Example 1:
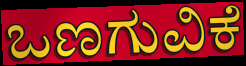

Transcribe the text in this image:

ಒಣಗುವಿಕೆ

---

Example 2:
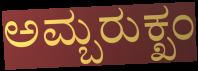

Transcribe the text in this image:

ಅಮ್ಬರುಕ್ಖಂ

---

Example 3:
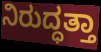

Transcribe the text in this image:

ನಿರುದ್ಧತ್ತಾ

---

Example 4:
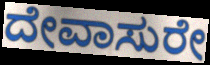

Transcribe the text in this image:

ದೇವಾಸುರೇ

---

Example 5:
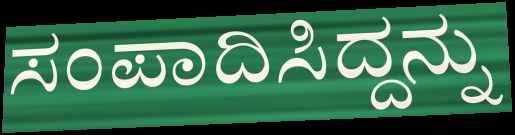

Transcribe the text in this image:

ಸಂಪಾದಿಸಿದ್ದನ್ನು